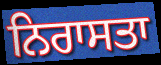
ਨਿਰਾਸਤਾ